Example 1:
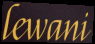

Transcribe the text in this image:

lewani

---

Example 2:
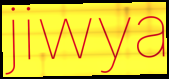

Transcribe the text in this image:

jiwya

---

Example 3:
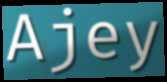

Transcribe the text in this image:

Ajey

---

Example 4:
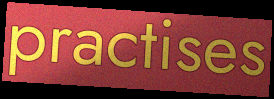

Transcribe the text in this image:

practises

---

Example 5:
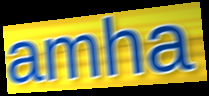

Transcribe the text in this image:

amha